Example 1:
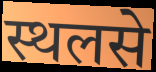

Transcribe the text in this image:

स्थलसे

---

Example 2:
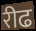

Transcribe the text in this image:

रीढ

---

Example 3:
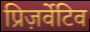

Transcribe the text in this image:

प्रिज़र्वेटिव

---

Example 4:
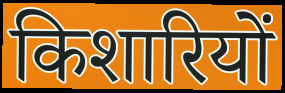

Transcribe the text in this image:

किशारियों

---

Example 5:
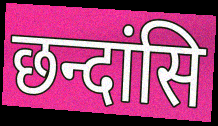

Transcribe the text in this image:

छन्दांसि